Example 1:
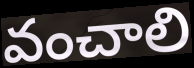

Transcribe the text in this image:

వంచాలి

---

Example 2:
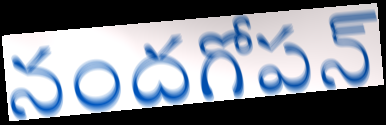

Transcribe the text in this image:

నందగోపన్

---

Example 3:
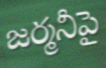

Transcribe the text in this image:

జర్మనీపై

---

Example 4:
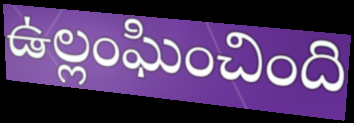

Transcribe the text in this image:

ఉల్లంఘించింది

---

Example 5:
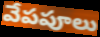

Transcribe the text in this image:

వేపపూలు